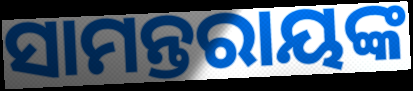
ସାମନ୍ତରାୟଙ୍କ